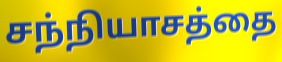
சந்நியாசத்தை